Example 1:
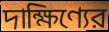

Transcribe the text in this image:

দাক্ষিণ্যের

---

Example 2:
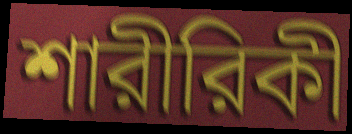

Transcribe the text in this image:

শারীরিকী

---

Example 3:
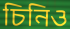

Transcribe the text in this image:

চিনিও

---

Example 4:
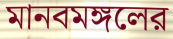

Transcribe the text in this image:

মানবমঙ্গলের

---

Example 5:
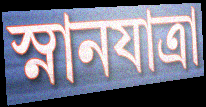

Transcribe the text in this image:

স্নানযাত্রা